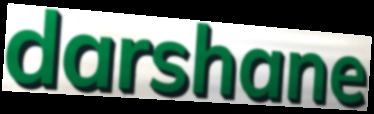
darshane